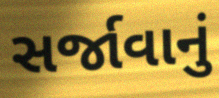
સર્જાવાનું